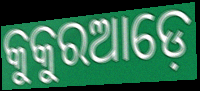
କୁକୁରଆଡ଼େ